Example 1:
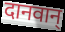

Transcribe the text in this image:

दानवान्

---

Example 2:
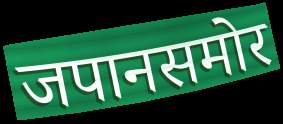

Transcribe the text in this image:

जपानसमोर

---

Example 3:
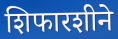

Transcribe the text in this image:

शिफारशीने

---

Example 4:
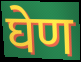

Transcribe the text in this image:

घेण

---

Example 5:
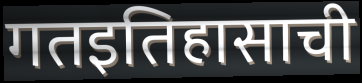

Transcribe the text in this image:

गतइतिहासाची